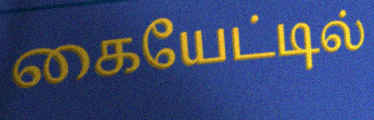
கையேட்டில்